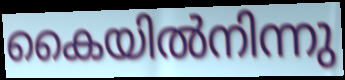
കൈയിൽനിന്നു